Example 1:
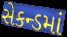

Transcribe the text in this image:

સેકન્ડમાં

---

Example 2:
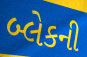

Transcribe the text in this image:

બ્લેકની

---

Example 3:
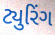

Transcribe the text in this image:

ટ્યુરિંગ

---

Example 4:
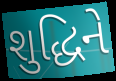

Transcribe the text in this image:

શુદ્ધિને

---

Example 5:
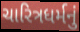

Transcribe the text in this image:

ચારિત્રધર્મનું